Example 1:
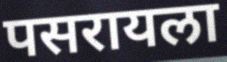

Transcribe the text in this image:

पसरायला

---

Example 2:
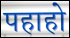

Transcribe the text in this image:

पहाहो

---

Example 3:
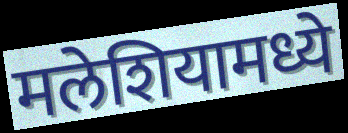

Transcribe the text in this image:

मलेशियामध्ये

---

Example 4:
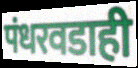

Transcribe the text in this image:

पंधरवडाही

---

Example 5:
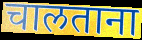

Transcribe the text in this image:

चालताना